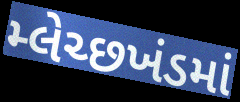
મ્લેચ્છખંડમાં